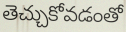
తెచ్చుకోవడంతో